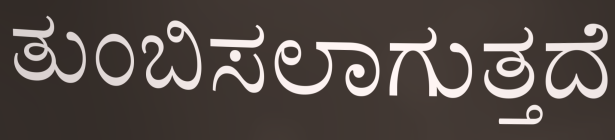
ತುಂಬಿಸಲಾಗುತ್ತದೆ